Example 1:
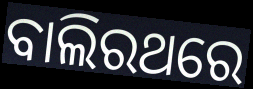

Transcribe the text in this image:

ବାଲିରଥରେ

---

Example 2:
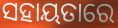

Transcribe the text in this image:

ସହାୟତାରେ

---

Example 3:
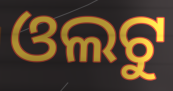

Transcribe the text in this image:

ଓଲଟୁ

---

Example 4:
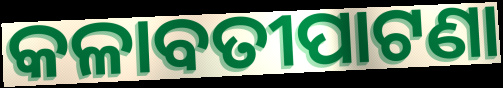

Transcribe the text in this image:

କଳାବତୀପାଟଣା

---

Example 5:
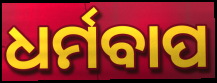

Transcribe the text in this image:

ଧର୍ମବାପ